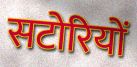
सटोरियों